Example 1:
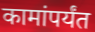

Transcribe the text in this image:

कामांपर्यंत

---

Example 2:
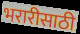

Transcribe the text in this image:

भरारीसाठी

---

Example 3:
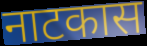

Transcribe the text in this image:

नाटकास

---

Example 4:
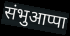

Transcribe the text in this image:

संभुआप्पा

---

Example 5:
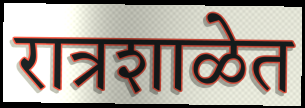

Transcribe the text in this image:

रात्रशाळेत